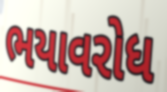
ભયાવરોધ